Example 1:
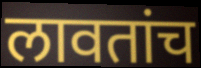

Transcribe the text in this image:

लावतांच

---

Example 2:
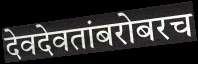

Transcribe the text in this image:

देवदेवतांबरोबरच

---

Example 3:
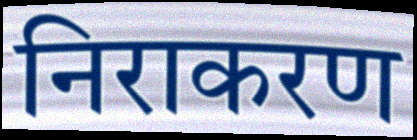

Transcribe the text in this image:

निराकरण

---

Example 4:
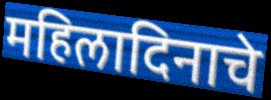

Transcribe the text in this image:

महिलादिनाचे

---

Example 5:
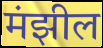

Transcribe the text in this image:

मंझील